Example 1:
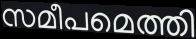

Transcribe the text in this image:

സമീപമെത്തി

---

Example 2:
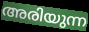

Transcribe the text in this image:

അരിയുന്ന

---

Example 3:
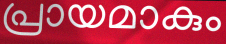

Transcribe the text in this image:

പ്രായമാകും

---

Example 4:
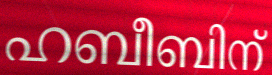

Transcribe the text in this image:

ഹബീബിന്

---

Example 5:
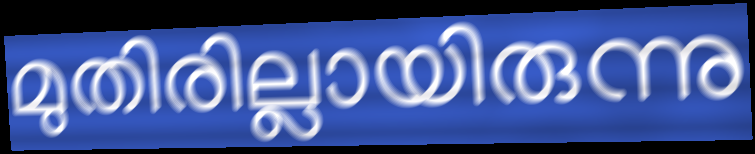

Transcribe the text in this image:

മുതിരില്ലായിരുന്നു